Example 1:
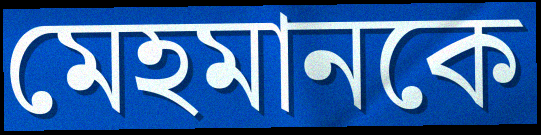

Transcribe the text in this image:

মেহমানকে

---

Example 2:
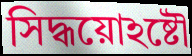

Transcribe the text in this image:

সিদ্ধয়োঽষ্টৌ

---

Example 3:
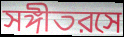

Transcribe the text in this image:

সঙ্গীতরসে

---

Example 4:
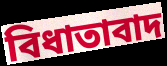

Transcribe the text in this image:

বিধাতাবাদ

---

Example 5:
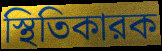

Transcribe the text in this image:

স্থিতিকারক